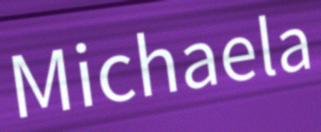
Michaela